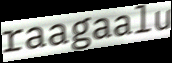
raagaalu